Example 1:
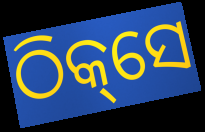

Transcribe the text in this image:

ଠିକ୍‌ସେ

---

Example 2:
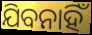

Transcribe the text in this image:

ଯିବନାହିଁ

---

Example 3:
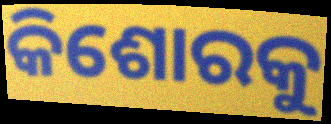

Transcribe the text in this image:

କିଶୋରକୁ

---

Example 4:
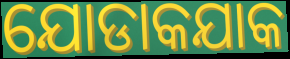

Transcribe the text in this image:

ଯୋଡାକଯାକ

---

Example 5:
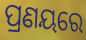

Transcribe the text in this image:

ପ୍ରଣୟରେ